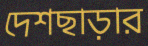
দেশছাড়ার